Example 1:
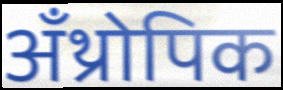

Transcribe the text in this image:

अँथ्रोपिक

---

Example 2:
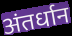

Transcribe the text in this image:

अंतर्धान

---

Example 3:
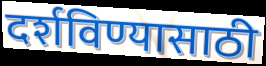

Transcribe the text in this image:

दर्शविण्यासाठी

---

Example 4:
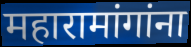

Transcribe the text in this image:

महारामांगांना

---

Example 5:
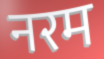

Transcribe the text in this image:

नरम